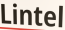
Lintel